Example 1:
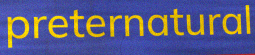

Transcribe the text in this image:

preternatural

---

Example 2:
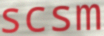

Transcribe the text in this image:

scsm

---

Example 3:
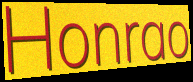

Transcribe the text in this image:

Honrao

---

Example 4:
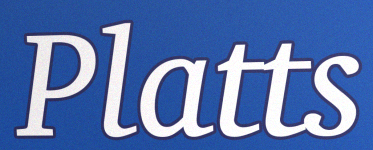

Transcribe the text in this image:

Platts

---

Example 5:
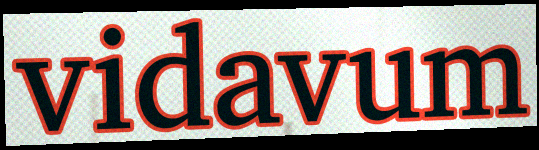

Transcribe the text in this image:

vidavum